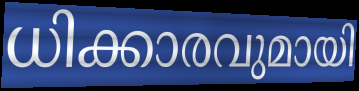
ധിക്കാരവുമായി